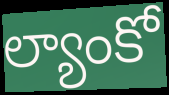
ల్యాంకో